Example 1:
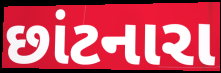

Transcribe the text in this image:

છાંટનારા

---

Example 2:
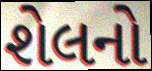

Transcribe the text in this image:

શેલનો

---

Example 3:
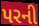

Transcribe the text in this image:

પરની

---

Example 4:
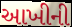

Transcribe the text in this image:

આખીની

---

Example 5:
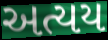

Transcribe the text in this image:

અત્યય